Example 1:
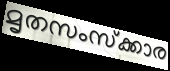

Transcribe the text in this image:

മൃതസംസ്ക്കാര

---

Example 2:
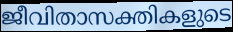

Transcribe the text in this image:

ജീവിതാസക്തികളുടെ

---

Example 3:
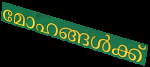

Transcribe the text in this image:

മോഹങ്ങൾക്ക്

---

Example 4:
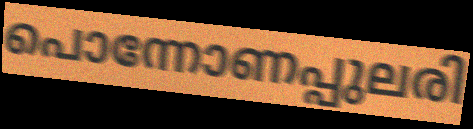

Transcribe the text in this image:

പൊന്നോണപ്പുലരി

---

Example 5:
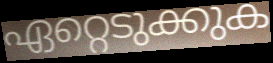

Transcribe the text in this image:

ഏറ്റെടുക്കുക